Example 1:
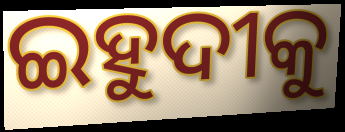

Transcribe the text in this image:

ଇହୁଦୀକୁ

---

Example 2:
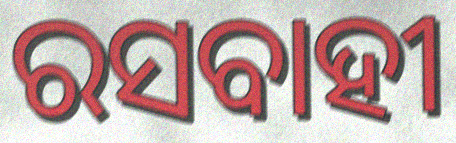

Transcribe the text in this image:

ରସବାହୀ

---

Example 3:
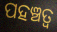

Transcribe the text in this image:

ପହଞ୍ଚତ୍ବ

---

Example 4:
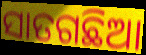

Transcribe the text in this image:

ସାତଗଛିଆ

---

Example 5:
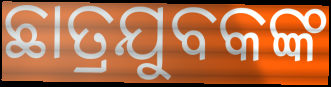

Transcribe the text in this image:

ଛାତ୍ରଯୁବକଙ୍କ